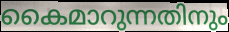
കൈമാറുന്നതിനും